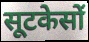
सूटकेसों